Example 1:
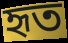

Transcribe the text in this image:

হৃত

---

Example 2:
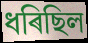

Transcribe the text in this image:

ধৰিছিল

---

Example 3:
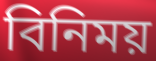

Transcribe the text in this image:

বিনিময়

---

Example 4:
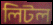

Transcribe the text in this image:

লিটল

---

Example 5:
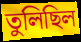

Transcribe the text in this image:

তুলিছিল